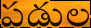
పడుల